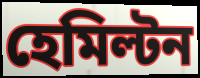
হেমিল্টন